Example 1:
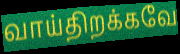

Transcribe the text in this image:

வாய்திறக்கவே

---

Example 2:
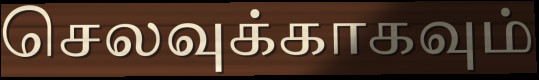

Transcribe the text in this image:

செலவுக்காகவும்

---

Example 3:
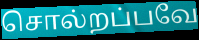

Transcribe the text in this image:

சொல்றப்பவே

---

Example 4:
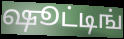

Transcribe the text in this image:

ஷூட்டிங்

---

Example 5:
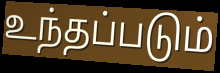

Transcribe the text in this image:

உந்தப்படும்